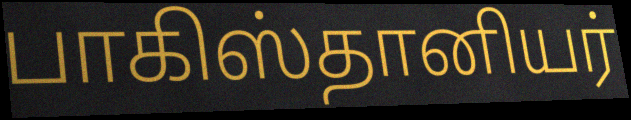
பாகிஸ்தானியர்